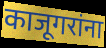
काजूगरांना